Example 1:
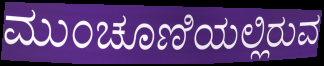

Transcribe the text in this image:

ಮುಂಚೂಣಿಯಲ್ಲಿರುವ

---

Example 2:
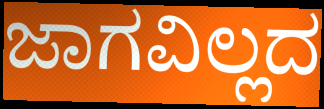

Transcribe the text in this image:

ಜಾಗವಿಲ್ಲದ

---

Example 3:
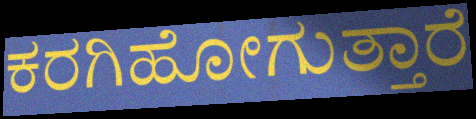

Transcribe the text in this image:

ಕರಗಿಹೋಗುತ್ತಾರೆ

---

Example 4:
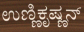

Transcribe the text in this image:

ಉಣ್ಣಿಕೃಷ್ಣನ್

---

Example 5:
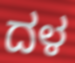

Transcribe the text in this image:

ದಳ